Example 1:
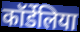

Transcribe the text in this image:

कॉर्डेलिया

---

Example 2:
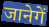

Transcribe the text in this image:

जानेगें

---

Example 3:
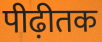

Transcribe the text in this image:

पीढ़ीतक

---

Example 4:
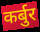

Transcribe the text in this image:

कर्बुर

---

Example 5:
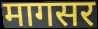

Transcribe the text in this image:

मागसर